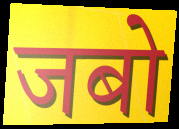
जबो